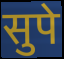
सुपे